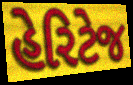
હેરિટેજ